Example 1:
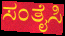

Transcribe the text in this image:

ಸಂತೈಸಿ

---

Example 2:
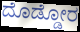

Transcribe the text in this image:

ದೊಡ್ಡೋರ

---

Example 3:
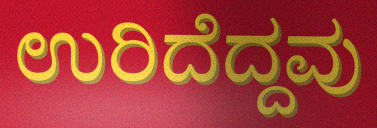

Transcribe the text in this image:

ಉರಿದೆದ್ದವು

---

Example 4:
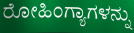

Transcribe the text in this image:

ರೋಹಿಂಗ್ಯಾಗಳನ್ನು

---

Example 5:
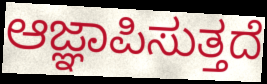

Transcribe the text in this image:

ಆಜ್ಞಾಪಿಸುತ್ತದೆ